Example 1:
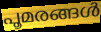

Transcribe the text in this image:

പൂമരങ്ങൾ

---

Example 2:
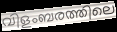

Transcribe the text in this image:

വിളംബരത്തിലെ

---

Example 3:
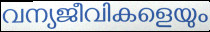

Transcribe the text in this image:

വന്യജീവികളെയും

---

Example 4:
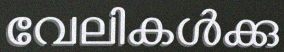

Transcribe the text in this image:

വേലികൾക്കു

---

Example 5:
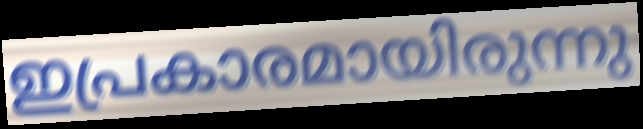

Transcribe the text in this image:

ഇപ്രകാരമായിരുന്നു